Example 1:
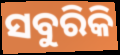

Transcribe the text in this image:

ସବୁରିକି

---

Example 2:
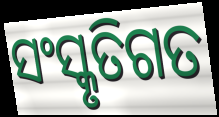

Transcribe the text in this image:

ସଂସ୍କୃତିଗତ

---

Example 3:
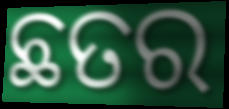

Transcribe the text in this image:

ଛତର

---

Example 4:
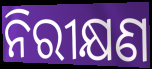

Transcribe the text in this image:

ନିରୀକ୍ଷଣ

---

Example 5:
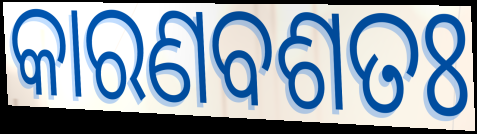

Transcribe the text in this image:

କାରଣବଶତଃ